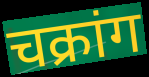
चक्रांग